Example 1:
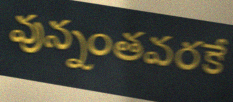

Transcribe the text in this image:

వున్నంతవరకే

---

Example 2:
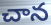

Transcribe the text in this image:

చాన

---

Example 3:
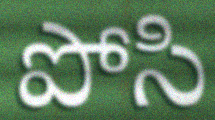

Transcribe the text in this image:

పోసి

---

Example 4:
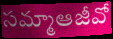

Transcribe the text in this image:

సమ్మాఆజీవో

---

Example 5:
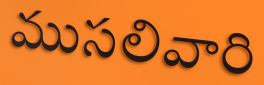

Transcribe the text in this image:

ముసలివారి